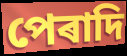
পেৰাদি